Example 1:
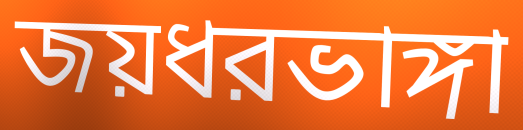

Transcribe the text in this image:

জয়ধরভাঙ্গা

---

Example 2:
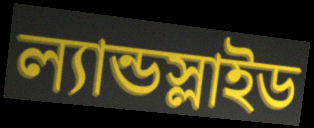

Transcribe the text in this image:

ল্যান্ডস্লাইড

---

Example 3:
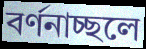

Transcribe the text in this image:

বর্ণনাচ্ছলে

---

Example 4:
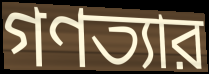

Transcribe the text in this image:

গণত্যার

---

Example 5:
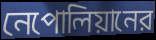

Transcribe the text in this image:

নেপোলিয়ানের